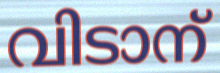
വിടാന്